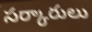
సర్కారులు